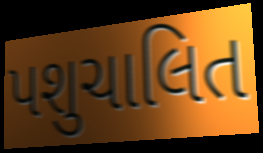
પશુચાલિત